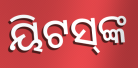
ୟିଟସ୍‌ଙ୍କ